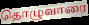
தொழுவாரை